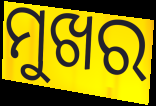
ମୁଖର